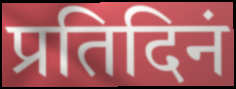
प्रतिदिनं